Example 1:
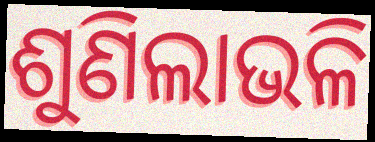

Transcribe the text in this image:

ଶୁଣିଲାଭଳି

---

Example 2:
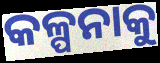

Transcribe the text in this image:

କଳ୍ପନାକୁ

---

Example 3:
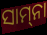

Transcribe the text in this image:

ସାମ୍‍ନା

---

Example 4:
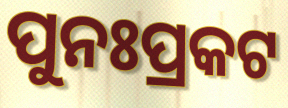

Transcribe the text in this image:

ପୁନଃପ୍ରକଟ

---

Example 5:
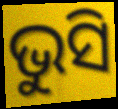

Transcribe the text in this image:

ଭୁସି